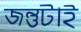
জন্তুটাই